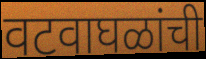
वटवाघळांची